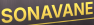
SONAVANE